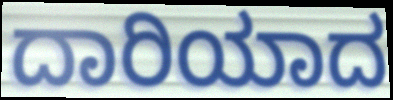
ದಾರಿಯಾದ